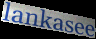
lankasee